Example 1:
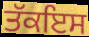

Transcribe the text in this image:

ਤੱਕਇਸ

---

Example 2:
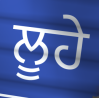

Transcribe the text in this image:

ਲੂਹੇ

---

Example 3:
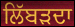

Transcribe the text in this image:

ਲਿੱਬੜਦਾ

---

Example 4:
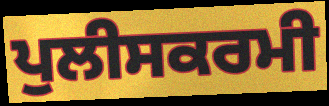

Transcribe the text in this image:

ਪੁਲੀਸਕਰਮੀ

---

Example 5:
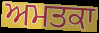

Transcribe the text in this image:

ਅਮਤਕਾ